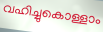
വഹിച്ചുകൊള്ളാം